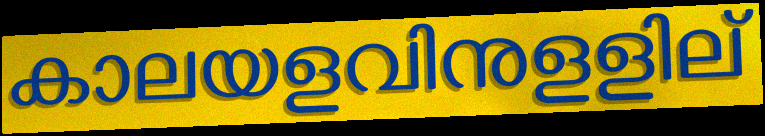
കാലയളവിനുളളില്